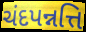
ચંદપન્નત્તિ